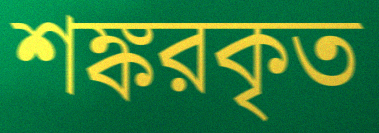
শঙ্করকৃত